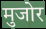
मुजोर